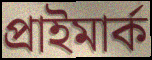
প্রাইমার্ক